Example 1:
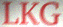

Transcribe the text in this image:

LKG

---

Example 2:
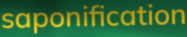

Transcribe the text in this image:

saponification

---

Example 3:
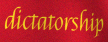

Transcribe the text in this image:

dictatorship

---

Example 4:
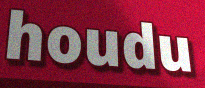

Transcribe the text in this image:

houdu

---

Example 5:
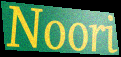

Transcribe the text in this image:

Noori